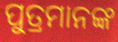
ପୁତ୍ରମାନଙ୍କ